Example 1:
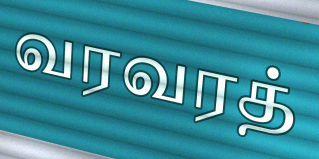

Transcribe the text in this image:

வரவரத்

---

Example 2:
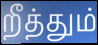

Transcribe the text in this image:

றீத்தும்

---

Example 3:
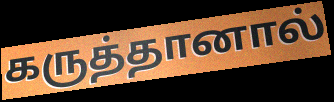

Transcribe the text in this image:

கருத்தானால்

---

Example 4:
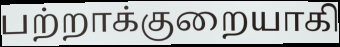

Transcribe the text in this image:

பற்றாக்குறையாகி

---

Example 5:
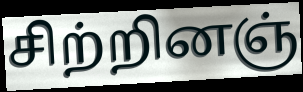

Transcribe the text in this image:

சிற்றினஞ்